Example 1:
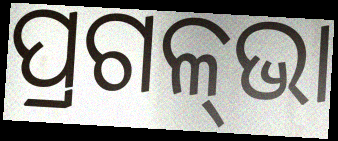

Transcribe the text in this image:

ପ୍ରଗଳ୍‌ଭା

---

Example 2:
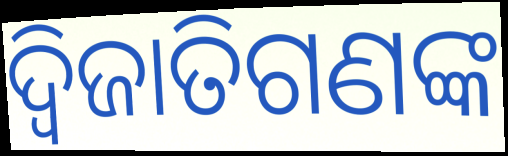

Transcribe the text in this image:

ଦ୍ୱିଜାତିଗଣଙ୍କ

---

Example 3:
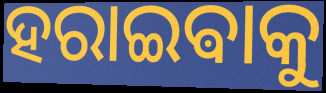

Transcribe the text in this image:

ହରାଇଵାକୁ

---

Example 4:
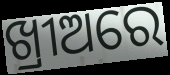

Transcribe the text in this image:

ଖ୍ରୀଅରେ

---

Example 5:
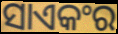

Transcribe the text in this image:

ସାଏକଂର